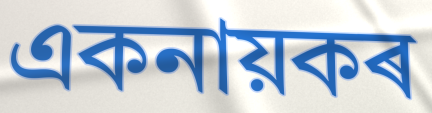
একনায়কৰ